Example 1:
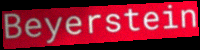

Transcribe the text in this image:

Beyerstein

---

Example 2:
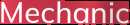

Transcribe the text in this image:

Mechanic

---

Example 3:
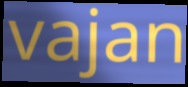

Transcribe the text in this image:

vajan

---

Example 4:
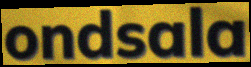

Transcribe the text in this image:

ondsala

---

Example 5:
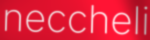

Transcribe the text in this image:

neccheli